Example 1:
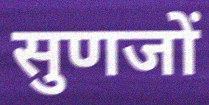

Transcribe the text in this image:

सुणजों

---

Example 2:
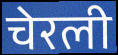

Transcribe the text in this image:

चेरली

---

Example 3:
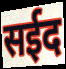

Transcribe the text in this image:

सईद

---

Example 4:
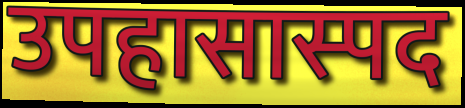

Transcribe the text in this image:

उपहासास्पद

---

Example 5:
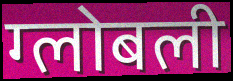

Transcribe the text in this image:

ग्लोबली